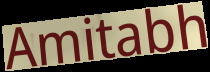
Amitabh